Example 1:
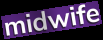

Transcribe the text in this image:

midwife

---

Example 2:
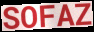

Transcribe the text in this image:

SOFAZ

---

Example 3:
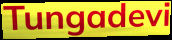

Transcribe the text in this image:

Tungadevi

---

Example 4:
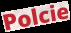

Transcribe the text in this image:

Polcie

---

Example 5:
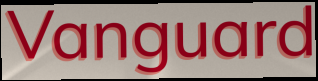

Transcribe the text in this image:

Vanguard